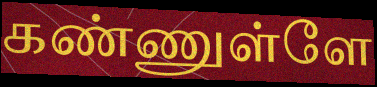
கண்ணுள்ளே